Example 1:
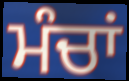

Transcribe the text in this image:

ਮੰਚਾਂ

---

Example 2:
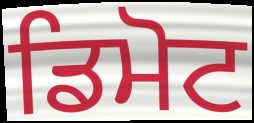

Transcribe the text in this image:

ਡਿਮੋਟ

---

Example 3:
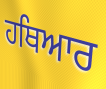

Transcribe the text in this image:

ਹਥਿਆਰ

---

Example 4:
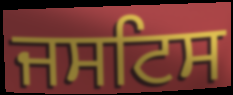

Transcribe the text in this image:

ਜਸਟਿਸ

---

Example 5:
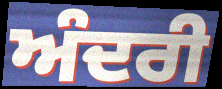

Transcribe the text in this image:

ਅੰਦਰੀ